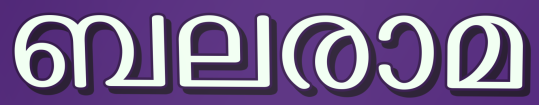
ബലരാമ